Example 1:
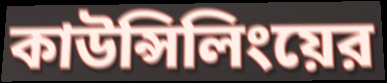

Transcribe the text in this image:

কাউন্সিলিংয়ের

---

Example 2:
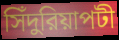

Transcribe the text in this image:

সিঁদুরিয়াপটী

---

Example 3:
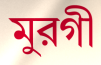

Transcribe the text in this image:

মুরগী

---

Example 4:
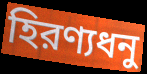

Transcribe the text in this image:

হিরণ্যধনু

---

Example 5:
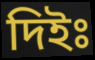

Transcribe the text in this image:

দিইঃ